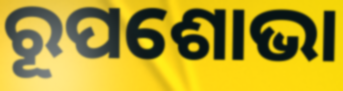
ରୂପଶୋଭା